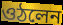
ওঠলেন